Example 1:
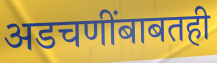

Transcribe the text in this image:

अडचणींबाबतही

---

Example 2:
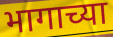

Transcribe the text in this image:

भागाच्या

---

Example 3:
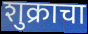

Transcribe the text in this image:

शुक्राचा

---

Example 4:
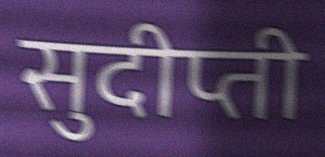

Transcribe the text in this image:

सुदीप्ती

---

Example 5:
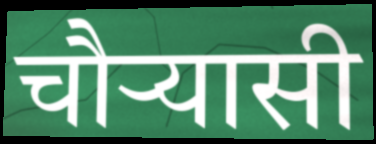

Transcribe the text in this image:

चौर्‍यासी